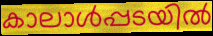
കാലാൾപ്പടയിൽ